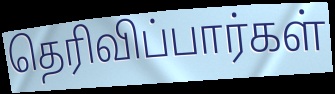
தெரிவிப்பார்கள்